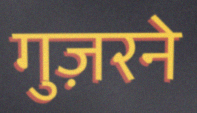
गुज़रने